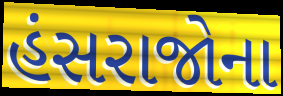
હંસરાજોના